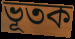
ভূতক